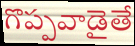
గొప్పవాడైతే